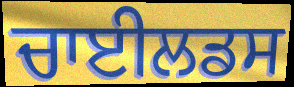
ਚਾਈਲਡਸ